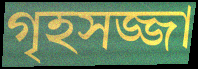
গৃহসজ্জা